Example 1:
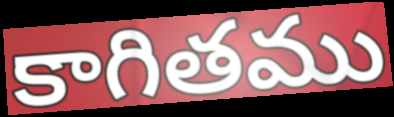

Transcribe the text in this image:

కాగితము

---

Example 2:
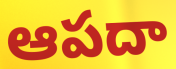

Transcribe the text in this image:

ఆపదా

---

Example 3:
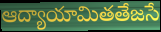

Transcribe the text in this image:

ఆద్యాయామితతేజసే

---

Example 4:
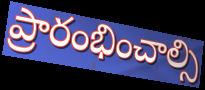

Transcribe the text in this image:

ప్రారంభించాల్సి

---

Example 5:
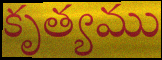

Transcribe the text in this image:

కృత్యము